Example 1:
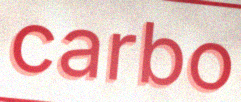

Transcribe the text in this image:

carbo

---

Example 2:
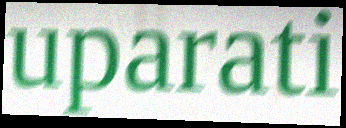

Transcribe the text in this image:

uparati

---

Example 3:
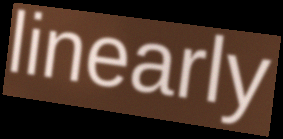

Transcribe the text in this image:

linearly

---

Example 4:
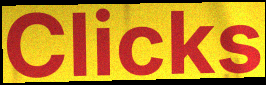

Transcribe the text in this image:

Clicks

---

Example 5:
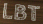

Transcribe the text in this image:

LBT